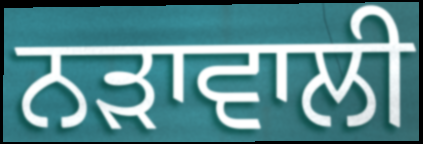
ਨੜਾਵਾਲੀ